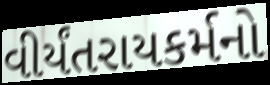
વીર્યંતરાયકર્મનો